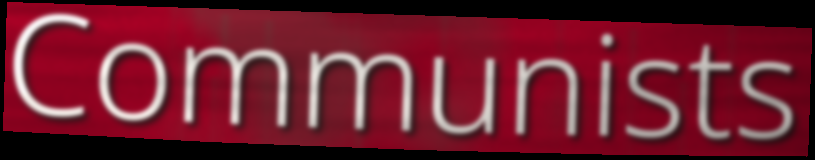
Communists